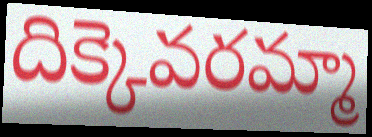
దిక్కెవరమ్మా